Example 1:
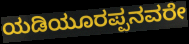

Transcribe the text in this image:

ಯಡಿಯೂರಪ್ಪನವರೇ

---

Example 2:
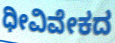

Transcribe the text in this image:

ಧೀವಿವೇಕದ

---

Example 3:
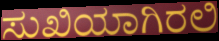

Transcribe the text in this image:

ಸುಖಿಯಾಗಿರಲಿ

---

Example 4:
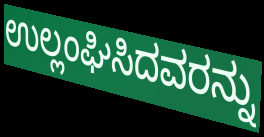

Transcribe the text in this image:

ಉಲ್ಲಂಘಿಸಿದವರನ್ನು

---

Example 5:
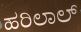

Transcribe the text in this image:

ಹರಿಲಾಲ್